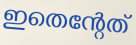
ഇതെന്റേത്